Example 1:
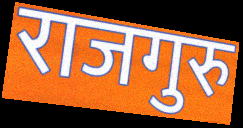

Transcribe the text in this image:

राजगुरु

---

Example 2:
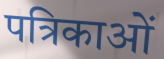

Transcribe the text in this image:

पत्रिकाओं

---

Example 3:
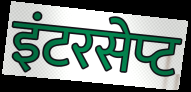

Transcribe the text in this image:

इंटरसेप्‍ट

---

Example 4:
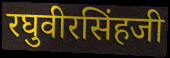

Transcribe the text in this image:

रघुवीरसिंहजी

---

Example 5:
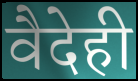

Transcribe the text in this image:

वैदेही